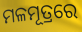
ମଳମୂତ୍ରରେ